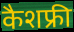
कैशफ्री